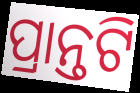
ପ୍ରାନ୍ତଟି